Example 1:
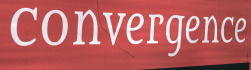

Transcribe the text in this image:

convergence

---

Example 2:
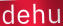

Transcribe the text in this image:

dehu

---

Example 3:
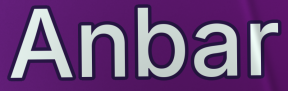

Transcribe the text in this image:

Anbar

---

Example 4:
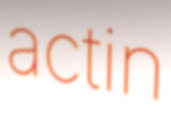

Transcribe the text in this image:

actin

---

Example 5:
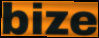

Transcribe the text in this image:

bize